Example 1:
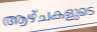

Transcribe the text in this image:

ആഴ്ചകളുടെ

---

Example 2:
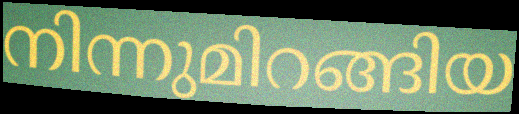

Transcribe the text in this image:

നിന്നുമിറങ്ങിയ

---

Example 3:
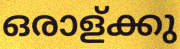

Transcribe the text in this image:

ഒരാള്ക്കു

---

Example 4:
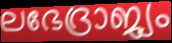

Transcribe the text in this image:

ലഭേദ്രാജ്യം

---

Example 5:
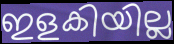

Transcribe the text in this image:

ഇളകിയില്ല